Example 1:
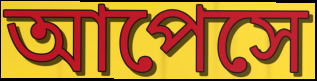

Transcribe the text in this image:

আপেসে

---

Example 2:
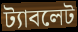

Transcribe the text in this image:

ট্যাবলেট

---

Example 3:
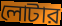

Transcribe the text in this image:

লোটার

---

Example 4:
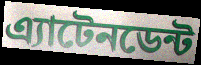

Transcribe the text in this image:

এ্যাটেনডেন্ট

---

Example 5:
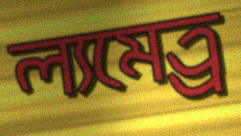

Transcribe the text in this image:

ল্যমেত্র্র